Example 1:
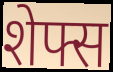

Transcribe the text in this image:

शेफ्स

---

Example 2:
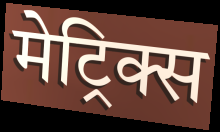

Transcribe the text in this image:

मेट्रिक्स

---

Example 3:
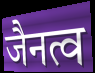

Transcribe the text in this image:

जैनत्व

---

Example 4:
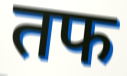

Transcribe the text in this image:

तफ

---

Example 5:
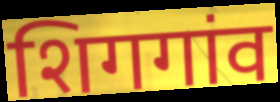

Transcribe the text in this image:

शिगगांव